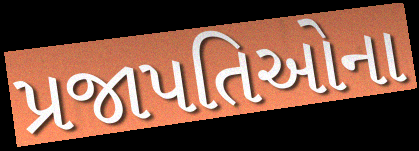
પ્રજાપતિઓના